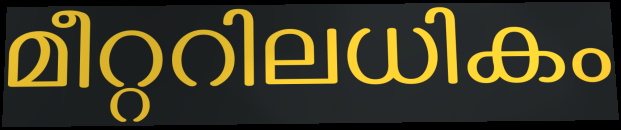
മീറ്ററിലധികം